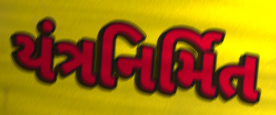
યંત્રનિર્મિત